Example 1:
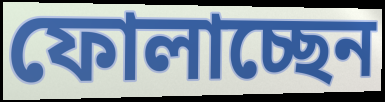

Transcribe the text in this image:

ফোলাচ্ছেন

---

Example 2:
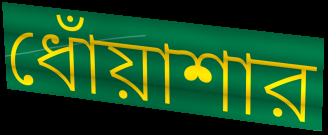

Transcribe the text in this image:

ধোঁয়াশার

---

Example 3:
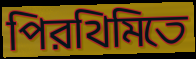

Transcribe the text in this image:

পিরথিমিতে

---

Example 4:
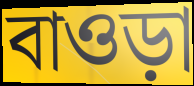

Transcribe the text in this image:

বাওড়া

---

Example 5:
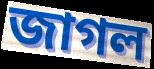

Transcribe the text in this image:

জাগল